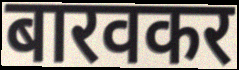
बारवकर